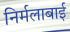
निर्मलाबाई